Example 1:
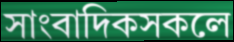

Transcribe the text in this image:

সাংবাদিকসকলে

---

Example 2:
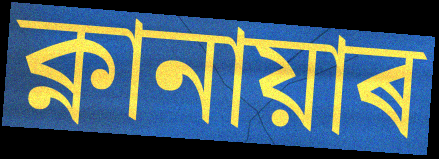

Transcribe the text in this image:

ক্নানায়াৰ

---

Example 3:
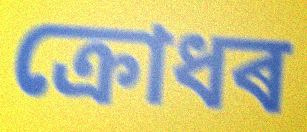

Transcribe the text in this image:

ক্ৰোধৰ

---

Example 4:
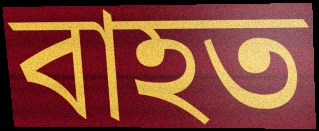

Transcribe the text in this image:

বাহত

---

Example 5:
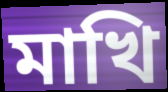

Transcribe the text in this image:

মাখি